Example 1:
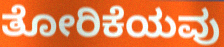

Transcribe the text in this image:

ತೋರಿಕೆಯವು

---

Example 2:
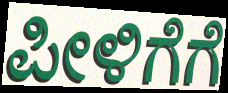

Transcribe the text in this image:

ಪೀಳಿಗೆಗೆ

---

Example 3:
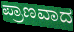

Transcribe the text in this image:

ಪ್ರಾಣವಾದ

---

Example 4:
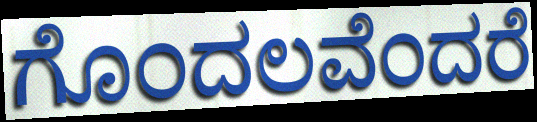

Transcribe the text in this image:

ಗೊಂದಲವೆಂದರೆ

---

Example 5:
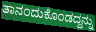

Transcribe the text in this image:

ತಾನಂದುಕೊಂಡದ್ದನ್ನು